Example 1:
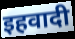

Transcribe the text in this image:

इहवादी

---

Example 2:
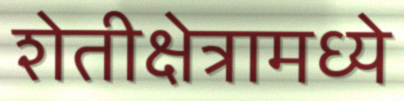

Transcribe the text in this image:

शेतीक्षेत्रामध्ये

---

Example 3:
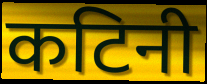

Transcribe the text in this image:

कटिनी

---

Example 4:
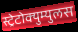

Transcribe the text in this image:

स्ट्रेटोक्युम्युलस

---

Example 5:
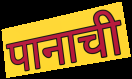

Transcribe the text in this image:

पानाची